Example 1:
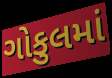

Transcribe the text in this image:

ગોકુલમાં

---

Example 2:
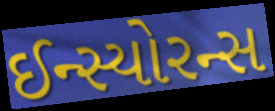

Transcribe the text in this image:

ઈન્સ્યોરન્સ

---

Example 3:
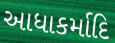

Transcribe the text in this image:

આધાકર્માદિ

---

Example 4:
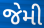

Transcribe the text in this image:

જેમી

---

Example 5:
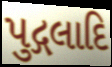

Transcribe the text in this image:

પુદ્ગલાદિ